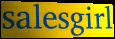
salesgirl